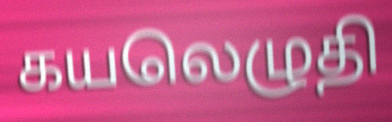
கயலெழுதி